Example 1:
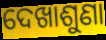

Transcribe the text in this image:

ଦେଖାଶୁଣା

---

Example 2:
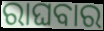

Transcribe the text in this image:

ରାଘବାର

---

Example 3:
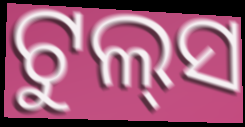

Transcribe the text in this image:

ଟୁଲ୍‌ସ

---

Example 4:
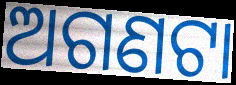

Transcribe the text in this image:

ଅଗଣଟା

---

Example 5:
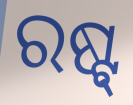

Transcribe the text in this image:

ରଷ୍ଟ୍